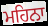
ਮਹਿਨਾ